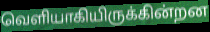
வெளியாகியிருக்கின்றன